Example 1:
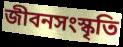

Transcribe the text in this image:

জীবনসংস্কৃতি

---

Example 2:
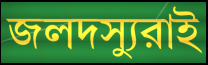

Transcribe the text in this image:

জলদস্যুরাই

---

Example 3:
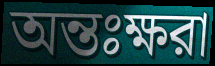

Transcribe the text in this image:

অন্তঃক্ষরা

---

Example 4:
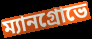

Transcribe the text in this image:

ম্যানগ্রোভে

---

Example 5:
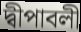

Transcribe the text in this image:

দ্বীপাবলী